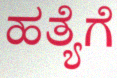
ಹತ್ಯೆಗೆ